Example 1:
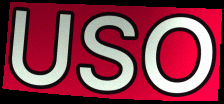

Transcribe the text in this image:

USO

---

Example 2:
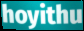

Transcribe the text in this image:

hoyithu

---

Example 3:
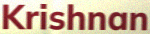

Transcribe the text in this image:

Krishnan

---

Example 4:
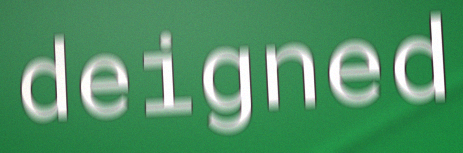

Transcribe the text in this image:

deigned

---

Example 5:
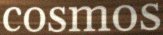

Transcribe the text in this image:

cosmos